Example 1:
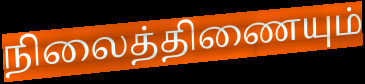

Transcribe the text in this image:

நிலைத்திணையும்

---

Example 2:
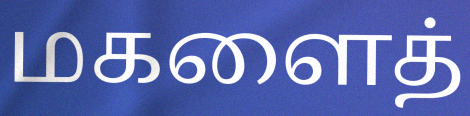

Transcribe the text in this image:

மகளைத்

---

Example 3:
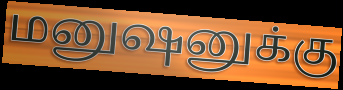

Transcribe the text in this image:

மனுஷனுக்கு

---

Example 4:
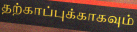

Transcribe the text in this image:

தற்காப்புக்காகவும்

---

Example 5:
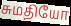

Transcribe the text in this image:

சுமதியோ